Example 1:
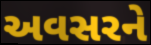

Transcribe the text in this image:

અવસરને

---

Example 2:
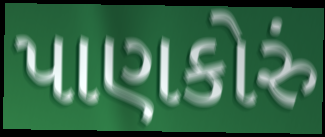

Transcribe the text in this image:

પાણકોરું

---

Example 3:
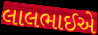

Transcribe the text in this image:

લાલભાઈએ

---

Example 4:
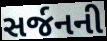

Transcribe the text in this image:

સર્જનની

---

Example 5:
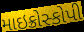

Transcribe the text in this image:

માઇક્રોસ્કોપી